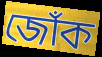
জোঁক